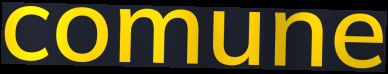
comune